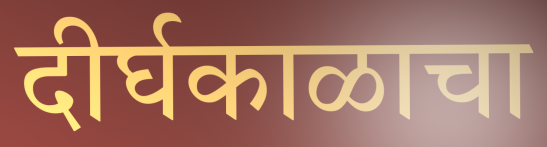
दीर्घकाळाचा